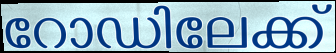
റോഡിലേക്ക്